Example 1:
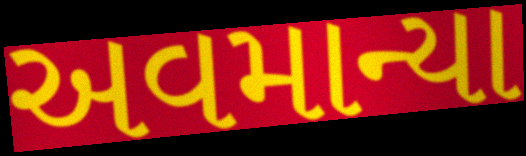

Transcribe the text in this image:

અવમાન્યા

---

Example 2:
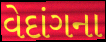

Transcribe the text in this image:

વેદાંગના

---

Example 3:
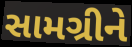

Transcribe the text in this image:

સામગ્રીને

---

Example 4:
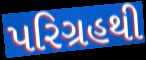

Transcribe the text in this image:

પરિગ્રહથી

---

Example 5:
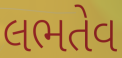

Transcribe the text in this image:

લભતેવ